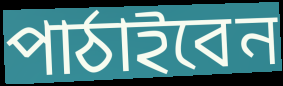
পাঠাইবেন